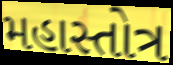
મહાસ્તોત્ર